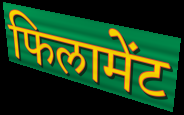
फिलामेंट